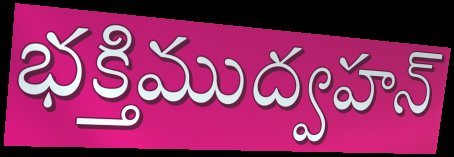
భక్తిముద్వహన్